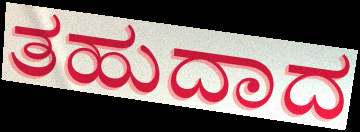
ತಹುದಾದ